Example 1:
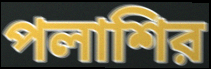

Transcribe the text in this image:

পলাশির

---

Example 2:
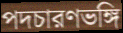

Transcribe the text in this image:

পদচারণভঙ্গি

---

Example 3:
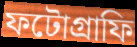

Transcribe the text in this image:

ফটোগ্রাফি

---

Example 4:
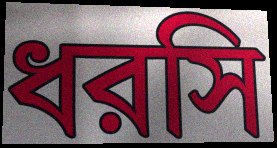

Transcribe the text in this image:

ধরসি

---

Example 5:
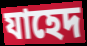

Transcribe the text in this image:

যাহেদ